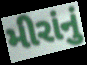
મીરાંનું